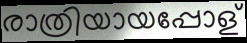
രാത്രിയായപ്പോള്